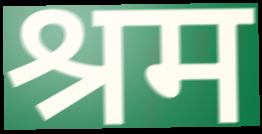
श्रम